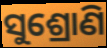
ସୁଶ୍ରୋଣି